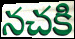
నచకి